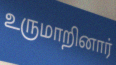
உருமாறினார்